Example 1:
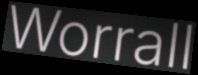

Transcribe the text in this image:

Worrall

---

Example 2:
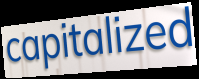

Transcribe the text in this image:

capitalized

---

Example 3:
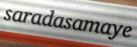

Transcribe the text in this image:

saradasamaye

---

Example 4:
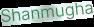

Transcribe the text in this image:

Shanmugha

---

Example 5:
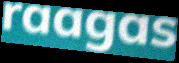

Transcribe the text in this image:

raagas